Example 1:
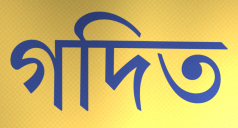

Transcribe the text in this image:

গদিত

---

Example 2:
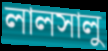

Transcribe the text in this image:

লালসালু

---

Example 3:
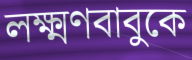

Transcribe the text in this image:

লক্ষ্মণবাবুকে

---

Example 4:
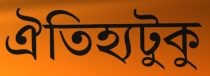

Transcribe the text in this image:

ঐতিহ্যটুকু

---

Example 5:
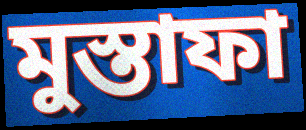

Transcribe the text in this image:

মুস্তাফা